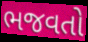
ભજવતો